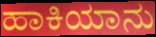
ಹಾಕಿಯಾನು